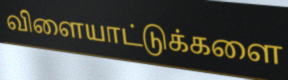
விளையாட்டுக்களை